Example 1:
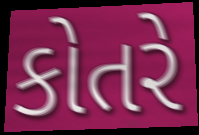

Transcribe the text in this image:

કોતરે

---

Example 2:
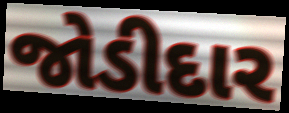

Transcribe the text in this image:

જોડીદાર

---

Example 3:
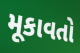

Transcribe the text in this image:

મૂકાવતો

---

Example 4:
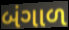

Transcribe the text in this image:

બંગાળ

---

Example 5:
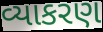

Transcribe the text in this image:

વ્યાકરણ